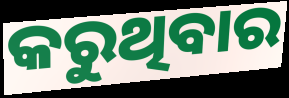
କରୁଥିବାର